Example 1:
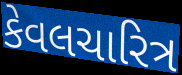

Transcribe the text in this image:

કેવલચારિત્ર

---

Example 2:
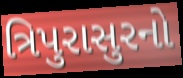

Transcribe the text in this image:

ત્રિપુરાસુરનો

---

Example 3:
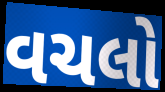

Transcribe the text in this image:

વચલો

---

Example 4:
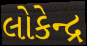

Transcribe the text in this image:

લોકેન્દ્ર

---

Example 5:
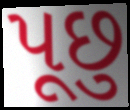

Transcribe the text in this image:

પૂછુ